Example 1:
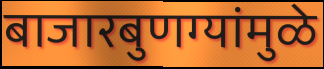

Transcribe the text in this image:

बाजारबुणग्यांमुळे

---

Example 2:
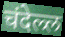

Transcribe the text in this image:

चंदेल्ल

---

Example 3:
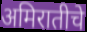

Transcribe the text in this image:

अमिरातीचे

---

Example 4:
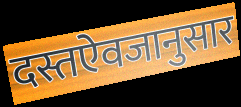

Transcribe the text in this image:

दस्तऐवजानुसार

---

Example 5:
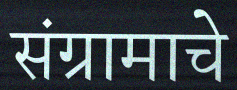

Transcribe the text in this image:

संग्रामाचे